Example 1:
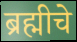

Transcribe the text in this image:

ब्रह्मीचे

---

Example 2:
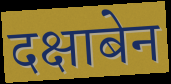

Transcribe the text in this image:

दक्षाबेन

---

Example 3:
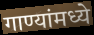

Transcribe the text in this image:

गाण्यांमध्ये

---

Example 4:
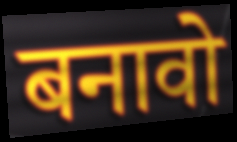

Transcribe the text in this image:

बनावो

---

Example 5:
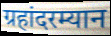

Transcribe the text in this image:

ग्रहांदरम्यान